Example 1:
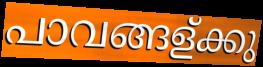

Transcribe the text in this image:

പാവങ്ങള്ക്കു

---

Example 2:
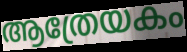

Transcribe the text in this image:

ആത്രേയകം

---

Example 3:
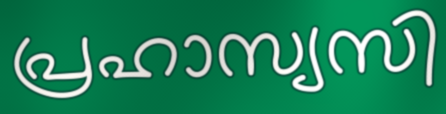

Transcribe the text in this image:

പ്രഹാസ്യസി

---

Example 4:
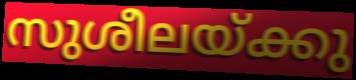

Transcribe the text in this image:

സുശീലയ്ക്കു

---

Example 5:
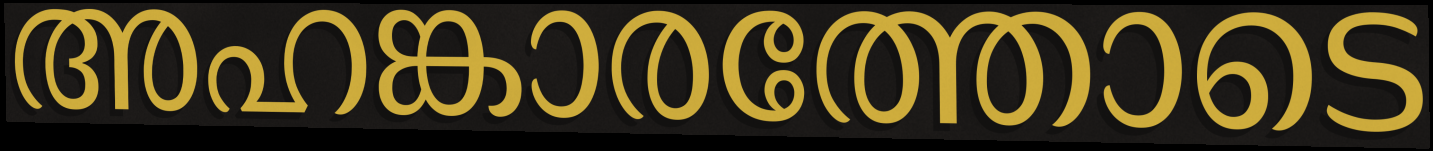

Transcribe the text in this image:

അഹങ്കാരത്തോടെ